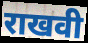
राखवी